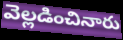
వెల్లడించినారు